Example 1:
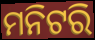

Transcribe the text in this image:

ମନିଟରି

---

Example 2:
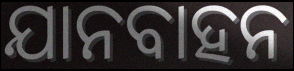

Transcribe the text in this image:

ଯାନବାହନ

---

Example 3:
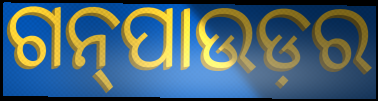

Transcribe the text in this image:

ଗନ୍‍ପାଉଡ଼ର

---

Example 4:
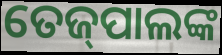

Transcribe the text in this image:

ତେଜ୍‌ପାଲଙ୍କ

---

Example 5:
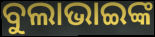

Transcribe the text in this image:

ବୁଲାଭାଇଙ୍କ